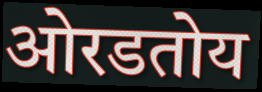
ओरडतोय